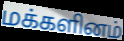
மக்களினம்